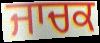
ਜਾਚਕ